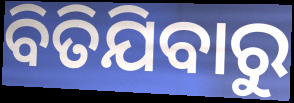
ବିତିଯିବାରୁ